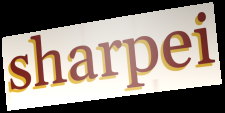
sharpei